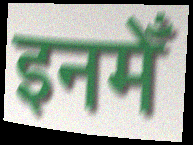
इनमेँ